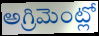
అగ్రిమెంట్లో